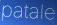
patale